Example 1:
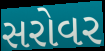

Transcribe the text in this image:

સરોવર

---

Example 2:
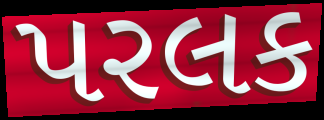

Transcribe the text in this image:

પરલક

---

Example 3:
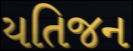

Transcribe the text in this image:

યતિજન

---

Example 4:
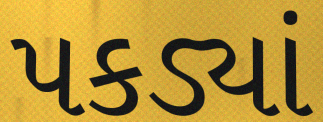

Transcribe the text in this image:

પકડ્યાં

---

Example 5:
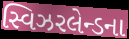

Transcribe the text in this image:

સ્વિઝરલેન્ડના